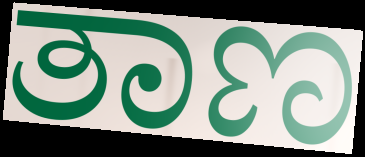
ತಾಣ